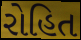
રોહિત